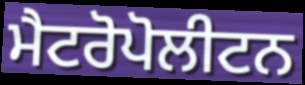
ਮੈਟਰੋਪੋਲੀਟਨ